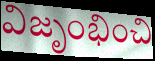
విజృంభించి